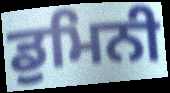
ਡੁਮਿਨੀ